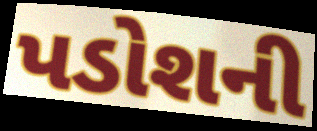
પડોશની